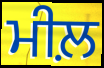
ਮੀਲ਼